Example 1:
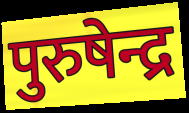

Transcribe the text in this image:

पुरुषेन्द्र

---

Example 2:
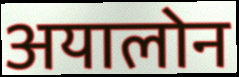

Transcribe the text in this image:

अयालोन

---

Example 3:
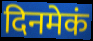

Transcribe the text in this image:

दिनमेकं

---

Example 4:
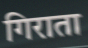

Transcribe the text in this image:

गिराता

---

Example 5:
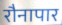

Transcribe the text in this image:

रौनापार